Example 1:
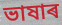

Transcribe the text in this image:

ভাষাৰ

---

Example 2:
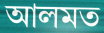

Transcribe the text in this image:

আলমত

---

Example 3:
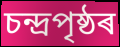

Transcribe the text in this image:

চন্দ্ৰপৃষ্ঠৰ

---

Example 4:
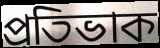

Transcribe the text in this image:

প্ৰতিভাক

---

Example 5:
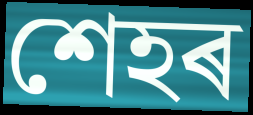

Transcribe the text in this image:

শেহৰ